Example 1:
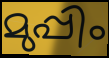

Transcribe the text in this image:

മുപ്പിം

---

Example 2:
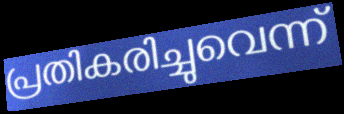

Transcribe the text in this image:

പ്രതികരിച്ചുവെന്ന്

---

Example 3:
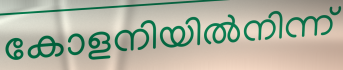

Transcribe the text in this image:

കോളനിയിൽനിന്ന്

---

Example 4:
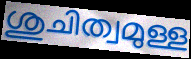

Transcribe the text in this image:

ശുചിത്വമുള്ള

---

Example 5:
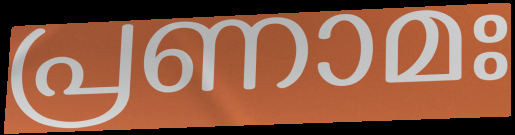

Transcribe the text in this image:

പ്രണാമഃ